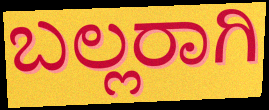
ಬಲ್ಲರಾಗಿ